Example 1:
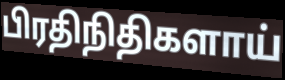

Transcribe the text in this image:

பிரதிநிதிகளாய்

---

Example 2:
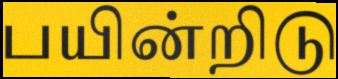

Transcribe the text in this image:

பயின்றிடு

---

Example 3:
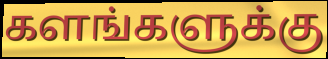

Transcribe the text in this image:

களங்களுக்கு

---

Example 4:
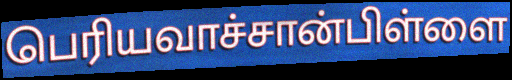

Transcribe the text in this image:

பெரியவாச்சான்பிள்ளை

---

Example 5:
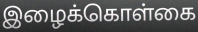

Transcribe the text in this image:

இழைக்கொள்கை